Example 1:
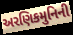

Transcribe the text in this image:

અરણિકમુનિની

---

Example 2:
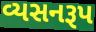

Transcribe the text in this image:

વ્યસનરૂપ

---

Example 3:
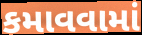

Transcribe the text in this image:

કમાવવામાં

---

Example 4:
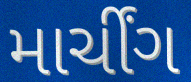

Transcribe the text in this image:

માર્ચીંગ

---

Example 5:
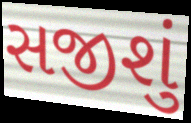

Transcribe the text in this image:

સજીશું